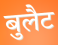
बुलैट